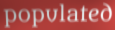
populated